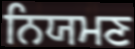
ਨਿਯਮਣ